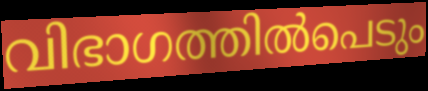
വിഭാഗത്തിൽപെടും